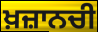
ਖ਼ਜ਼ਾਨਚੀ